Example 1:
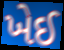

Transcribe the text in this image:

ખેઈ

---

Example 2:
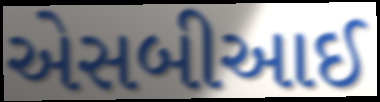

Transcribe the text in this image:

એસબીઆઈ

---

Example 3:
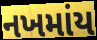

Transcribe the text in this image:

નખમાંય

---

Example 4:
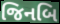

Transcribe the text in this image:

જિનબિ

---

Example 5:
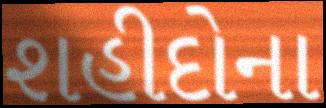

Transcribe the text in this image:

શહીદોના